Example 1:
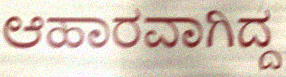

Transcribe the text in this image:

ಆಹಾರವಾಗಿದ್ದ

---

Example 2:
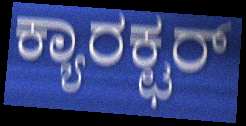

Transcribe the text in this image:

ಕ್ಯಾರಕ್ಟರ್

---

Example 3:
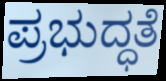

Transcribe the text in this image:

ಪ್ರಭುದ್ಧತೆ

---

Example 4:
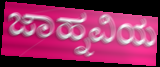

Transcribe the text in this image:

ಜಾಹ್ನವಿಯ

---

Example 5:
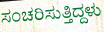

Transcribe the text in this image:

ಸಂಚರಿಸುತ್ತಿದ್ದಳು